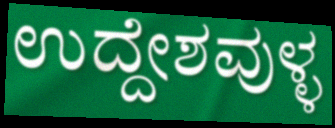
ಉದ್ದೇಶವುಳ್ಳ